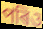
পৰিও